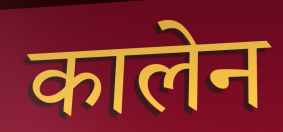
कालेन